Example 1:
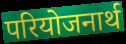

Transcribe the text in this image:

परियोजनार्थ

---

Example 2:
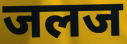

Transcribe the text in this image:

जलज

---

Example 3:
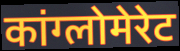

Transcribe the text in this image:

कांग्लोमेरेट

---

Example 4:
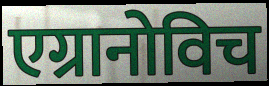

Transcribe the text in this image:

एग्रानोविच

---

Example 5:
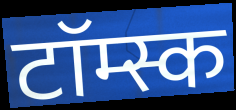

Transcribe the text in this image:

टॉम्स्क